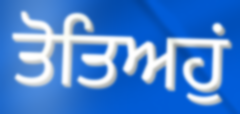
ਤੋਤਿਅਹੁਂ